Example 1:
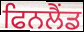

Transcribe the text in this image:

ਫਿਨਲੈਂਡ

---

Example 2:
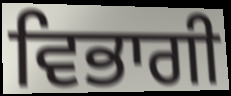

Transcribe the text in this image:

ਵਿਭਾਗੀ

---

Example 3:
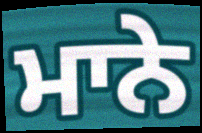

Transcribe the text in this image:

ਮਾਨੇ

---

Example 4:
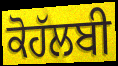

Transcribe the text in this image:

ਕੋਹੱਲਬੀ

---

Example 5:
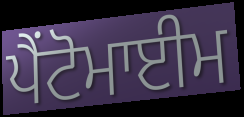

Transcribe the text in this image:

ਪੈਂਟੋਮਾਈਮ